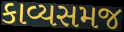
કાવ્યસમજ